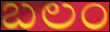
బలం